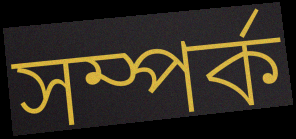
সম্পর্ক